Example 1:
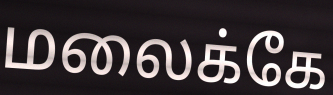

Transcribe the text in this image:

மலைக்கே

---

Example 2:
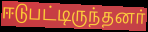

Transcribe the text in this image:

ஈடுபட்டிருந்தனர்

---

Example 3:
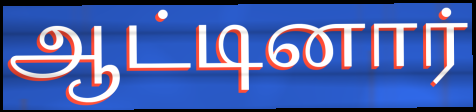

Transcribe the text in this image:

ஆட்டினார்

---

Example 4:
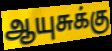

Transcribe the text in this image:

ஆயுசுக்கு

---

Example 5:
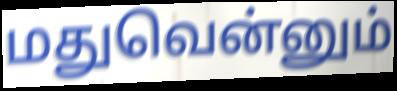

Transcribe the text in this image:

மதுவென்னும்